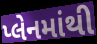
પ્લેનમાંથી